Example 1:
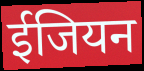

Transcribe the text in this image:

ईजियन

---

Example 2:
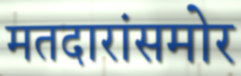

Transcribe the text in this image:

मतदारांसमोर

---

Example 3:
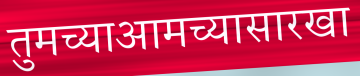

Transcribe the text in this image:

तुमच्याआमच्यासारखा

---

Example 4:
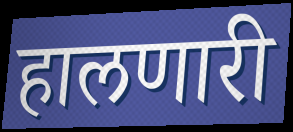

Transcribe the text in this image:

हालणारी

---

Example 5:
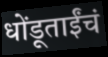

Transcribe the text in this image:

धोंडूताईंचं